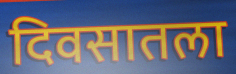
दिवसातला